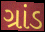
ગ્રાંડ